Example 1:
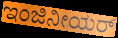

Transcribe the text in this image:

ಇಂಜಿನೀಯರ್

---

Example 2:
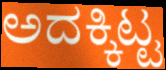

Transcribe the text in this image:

ಅದಕ್ಕಿಟ್ಟ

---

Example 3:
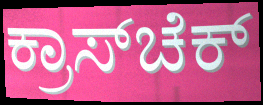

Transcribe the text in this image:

ಕ್ರಾಸ್‌ಚೆಕ್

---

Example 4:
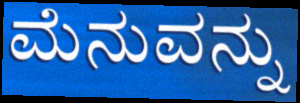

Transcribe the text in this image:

ಮೆನುವನ್ನು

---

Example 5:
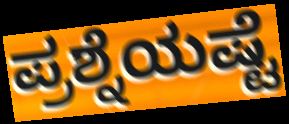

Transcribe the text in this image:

ಪ್ರಶ್ನೆಯಷ್ಟೆ